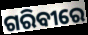
ଗରିବୀରେ